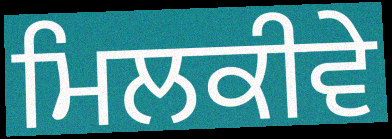
ਮਿਲਕੀਵੇ